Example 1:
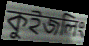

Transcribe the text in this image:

কুইজলিং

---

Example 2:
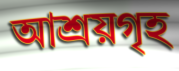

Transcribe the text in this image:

আশ্ৰয়গৃহ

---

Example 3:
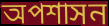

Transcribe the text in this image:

অপশাসন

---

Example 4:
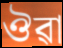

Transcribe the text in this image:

ঔৱা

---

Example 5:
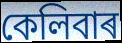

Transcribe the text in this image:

কেলিবাৰ